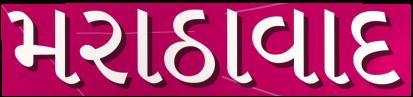
મરાઠાવાદ